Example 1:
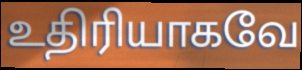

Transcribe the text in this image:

உதிரியாகவே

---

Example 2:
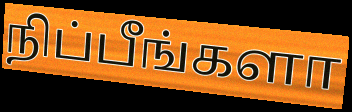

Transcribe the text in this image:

நிப்பீங்களா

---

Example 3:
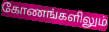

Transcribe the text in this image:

கோணங்களிலும்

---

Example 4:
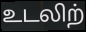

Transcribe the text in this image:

உடலிற்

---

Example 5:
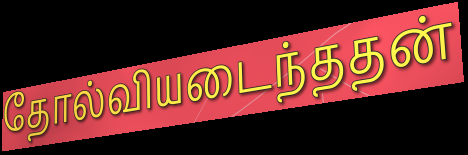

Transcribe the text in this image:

தோல்வியடைந்ததன்